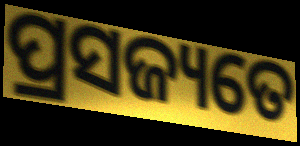
ପ୍ରସଜ୍ୟତେ